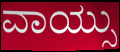
ವಾಯ್ಸು